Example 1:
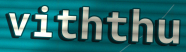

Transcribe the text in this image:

viththu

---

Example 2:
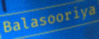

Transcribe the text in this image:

Balasooriya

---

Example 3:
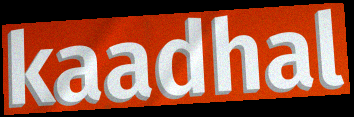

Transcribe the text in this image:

kaadhal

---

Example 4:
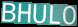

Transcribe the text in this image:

BHULO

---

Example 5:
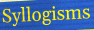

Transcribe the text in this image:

Syllogisms